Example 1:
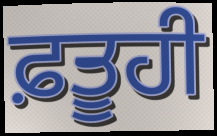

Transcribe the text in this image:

ਫ਼ਤੂਹੀ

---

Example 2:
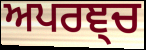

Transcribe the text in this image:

ਅਪਰਞ੍ਚ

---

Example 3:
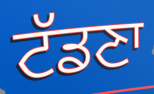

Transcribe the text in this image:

ਟੱਡਣਾ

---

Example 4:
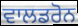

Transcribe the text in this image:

ਵਾਲਡਰੋਨ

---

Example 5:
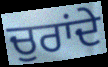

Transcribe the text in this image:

ਚੁਰਾਂਦੇ